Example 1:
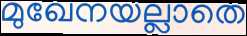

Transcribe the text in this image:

മുഖേനയല്ലാതെ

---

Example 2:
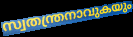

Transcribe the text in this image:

സ്വതന്ത്രനാവുകയും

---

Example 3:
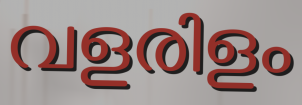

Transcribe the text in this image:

വളരിളം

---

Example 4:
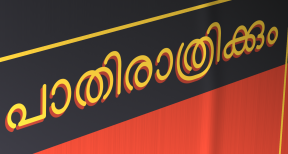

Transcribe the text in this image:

പാതിരാത്രിക്കും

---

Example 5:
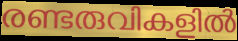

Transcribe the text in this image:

രണ്ടരുവികളിൽ